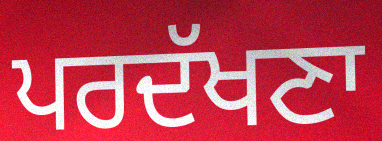
ਪਰਦੱਖਣਾ